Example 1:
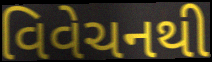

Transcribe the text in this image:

વિવેચનથી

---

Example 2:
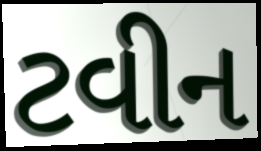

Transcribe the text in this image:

ટવીન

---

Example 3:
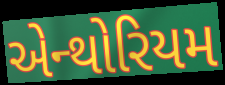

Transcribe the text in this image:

એન્થોરિયમ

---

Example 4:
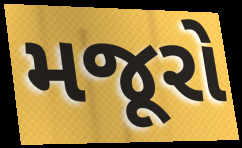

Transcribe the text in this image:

મજૂરો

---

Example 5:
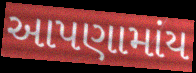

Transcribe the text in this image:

આપણામાંય